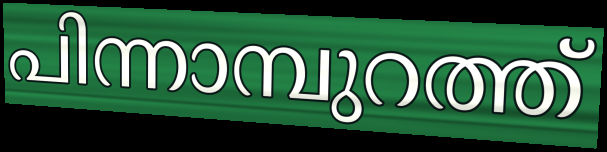
പിന്നാമ്പുറത്ത്